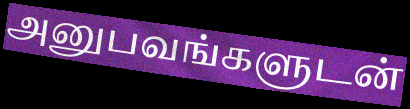
அனுபவங்களுடன்